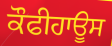
ਕੌਫੀਹਾਊਸ